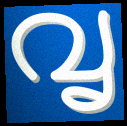
വൃ